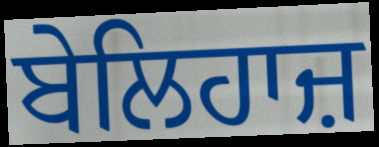
ਬੇਲਿਹਾਜ਼